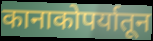
कानाकोपर्यातून